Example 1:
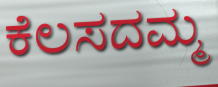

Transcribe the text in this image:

ಕೆಲಸದಮ್ಮ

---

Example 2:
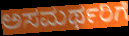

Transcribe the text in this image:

ಅಸಮರ್ಥರಿಗೆ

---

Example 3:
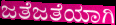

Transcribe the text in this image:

ಜತೆಜತೆಯಾಗಿ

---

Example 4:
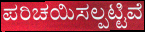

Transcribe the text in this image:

ಪರಿಚಯಿಸಲ್ಪಟ್ಟಿವೆ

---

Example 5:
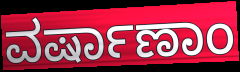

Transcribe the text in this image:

ವರ್ಷಾಣಾಂ